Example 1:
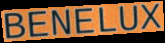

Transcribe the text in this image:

BENELUX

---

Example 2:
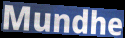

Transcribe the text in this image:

Mundhe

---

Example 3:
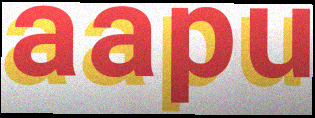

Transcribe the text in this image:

aapu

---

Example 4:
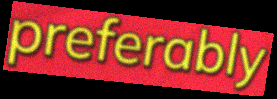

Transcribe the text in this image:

preferably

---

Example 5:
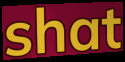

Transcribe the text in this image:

shat